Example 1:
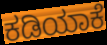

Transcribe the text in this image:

ಕಡಿಯಾಕೆ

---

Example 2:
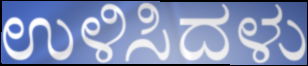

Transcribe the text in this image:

ಉಳಿಸಿದಳು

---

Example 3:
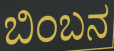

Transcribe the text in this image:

ಬಿಂಬನ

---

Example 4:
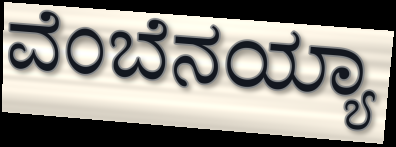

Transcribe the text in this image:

ವೆಂಬೆನಯ್ಯಾ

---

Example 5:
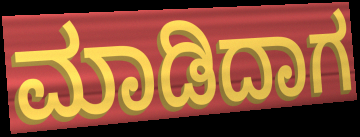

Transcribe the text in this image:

ಮಾಡಿದಾಗ